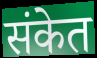
संकेत